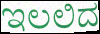
ಇಲಲಿದ